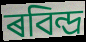
ৰবিন্দ্ৰ